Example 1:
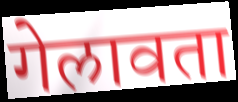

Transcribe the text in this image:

गेलावता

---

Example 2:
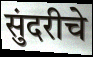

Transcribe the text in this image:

सुंदरीचे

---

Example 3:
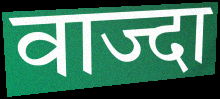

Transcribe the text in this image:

वाज्दा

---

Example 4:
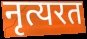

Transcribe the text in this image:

नृत्यरत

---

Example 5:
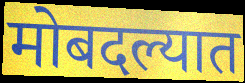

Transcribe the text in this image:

मोबदल्यात